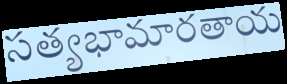
సత్యభామారతాయ